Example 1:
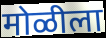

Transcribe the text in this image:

मोळीला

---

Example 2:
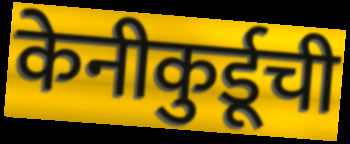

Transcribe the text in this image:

केनीकुर्डूची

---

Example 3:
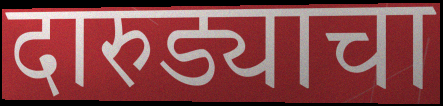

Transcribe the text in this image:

दारुड्याचा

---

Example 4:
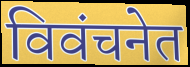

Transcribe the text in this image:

विवंचनेत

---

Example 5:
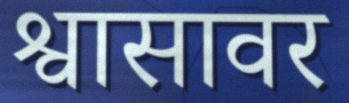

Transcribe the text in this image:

श्वासावर